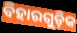
ବିହାରଗୁଡ଼ିକ